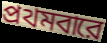
প্রথমবারে